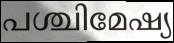
പശ്ചിമേഷ്യ